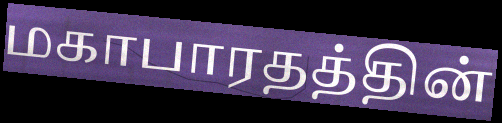
மகாபாரதத்தின்